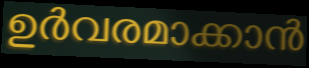
ഉർവരമാക്കാൻ